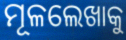
ମୂଳଲେଖାକୁ